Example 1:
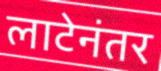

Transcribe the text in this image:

लाटेनंतर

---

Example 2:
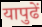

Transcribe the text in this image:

यापुढें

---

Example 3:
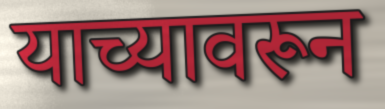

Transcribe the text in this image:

याच्यावरून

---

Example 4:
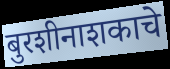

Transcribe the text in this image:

बुरशीनाशकाचे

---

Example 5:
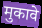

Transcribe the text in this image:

मुकावे